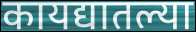
कायद्यातल्या